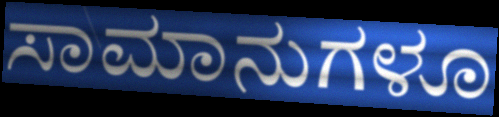
ಸಾಮಾನುಗಳೂ